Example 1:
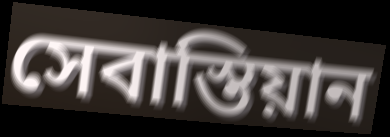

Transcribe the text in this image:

সেবাস্তিয়ান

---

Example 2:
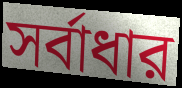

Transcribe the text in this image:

সর্বাধার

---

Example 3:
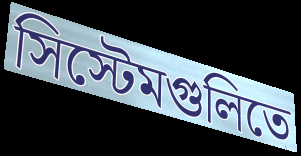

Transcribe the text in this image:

সিস্টেমগুলিতে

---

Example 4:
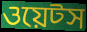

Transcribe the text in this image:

ওয়েট্স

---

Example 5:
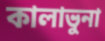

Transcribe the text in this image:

কালাভুনা